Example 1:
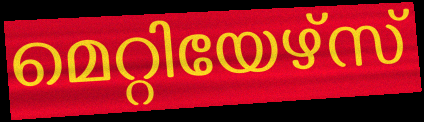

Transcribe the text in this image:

മെറ്റിയേഴ്സ്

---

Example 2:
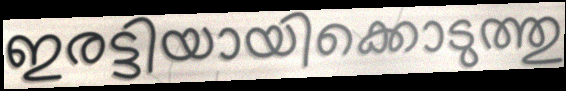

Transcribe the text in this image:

ഇരട്ടിയായിക്കൊടുത്തു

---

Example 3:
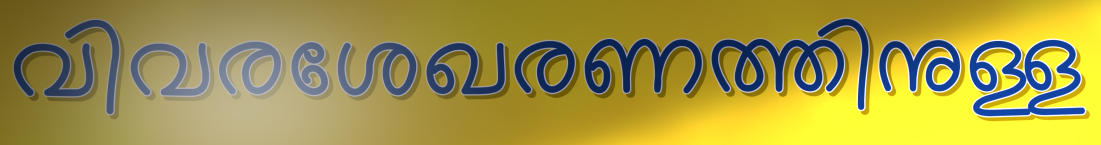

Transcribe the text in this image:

വിവരശേഖരണത്തിനുള്ള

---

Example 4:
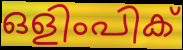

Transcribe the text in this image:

ഒളിംപിക്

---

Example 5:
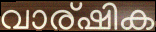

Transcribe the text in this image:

വാര്ഷിക